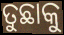
ତୁଛାକୁ